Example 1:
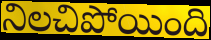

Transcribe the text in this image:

నిలచిపోయింది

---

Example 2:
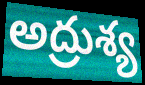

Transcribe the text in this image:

అద్రుశ్య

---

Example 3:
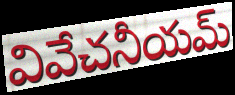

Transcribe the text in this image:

వివేచనీయమ్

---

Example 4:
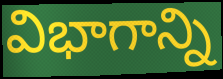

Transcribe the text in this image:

విభాగాన్ని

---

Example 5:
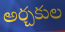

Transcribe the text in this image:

అర్చకుల